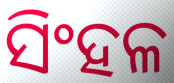
ସିଂହଳ